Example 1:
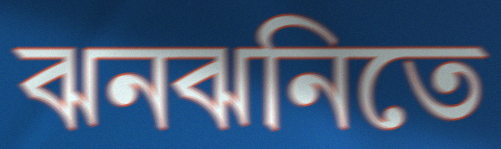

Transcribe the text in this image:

ঝনঝনিতে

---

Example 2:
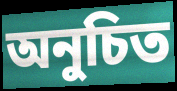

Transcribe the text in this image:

অনুচিত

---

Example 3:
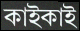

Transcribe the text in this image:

কাইকাই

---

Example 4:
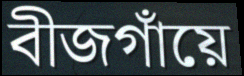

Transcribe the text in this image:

বীজগাঁয়ে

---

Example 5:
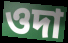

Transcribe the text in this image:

ওদা